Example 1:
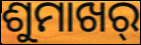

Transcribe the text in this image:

ଶୁମାଖର୍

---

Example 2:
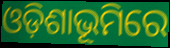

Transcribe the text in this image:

ଓଡ଼ିଶାଭୂମିରେ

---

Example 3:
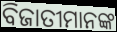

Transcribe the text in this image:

ବିଜାତୀମାନଙ୍କ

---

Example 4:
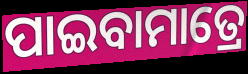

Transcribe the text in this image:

ପାଇବାମାତ୍ରେ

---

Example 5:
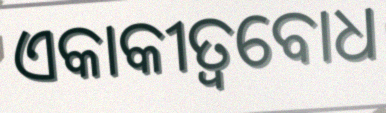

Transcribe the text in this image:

ଏକାକୀତ୍ୱବୋଧ